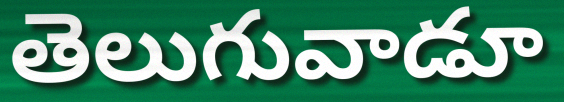
తెలుగువాడూ